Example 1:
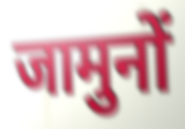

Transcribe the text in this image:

जामुनों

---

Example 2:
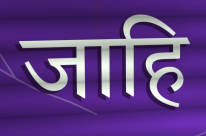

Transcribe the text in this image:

जाहि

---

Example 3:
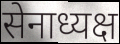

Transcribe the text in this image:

सेनाध्यक्ष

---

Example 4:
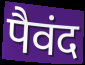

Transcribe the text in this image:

पैवंद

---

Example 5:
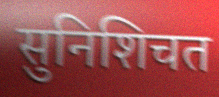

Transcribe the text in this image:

सुनिशिचत